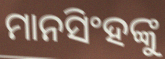
ମାନସିଂହଙ୍କୁ